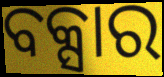
ବକ୍ସାର